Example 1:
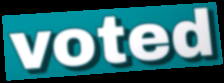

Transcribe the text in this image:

voted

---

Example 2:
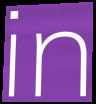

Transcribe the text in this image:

in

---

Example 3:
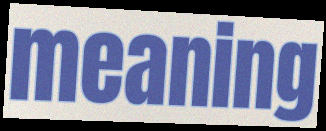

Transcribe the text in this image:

meaning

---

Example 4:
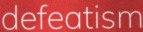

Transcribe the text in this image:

defeatism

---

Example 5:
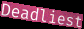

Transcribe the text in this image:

Deadliest